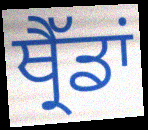
ਥ੍ਰੈੱਡਾਂ